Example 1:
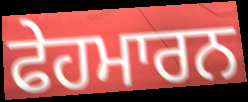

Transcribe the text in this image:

ਫੇਹਮਾਰਨ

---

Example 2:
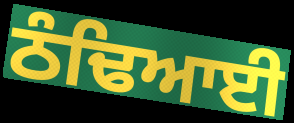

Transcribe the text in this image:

ਠੰਢਿਆਈ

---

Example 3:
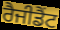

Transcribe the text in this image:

ਰੈਜੀਡੈਂਟ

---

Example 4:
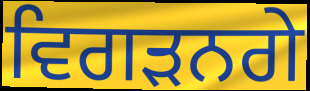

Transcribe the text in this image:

ਵਿਗੜਨਗੇ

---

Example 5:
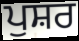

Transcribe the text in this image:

ਪੁਸ਼ਰ